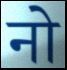
नो